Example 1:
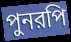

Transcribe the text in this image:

পুনরপি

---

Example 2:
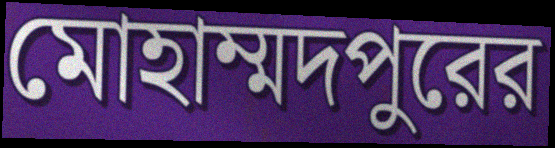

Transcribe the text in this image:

মোহাম্মদপুরের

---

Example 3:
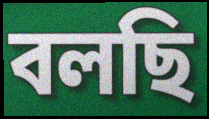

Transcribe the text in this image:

বলছি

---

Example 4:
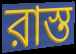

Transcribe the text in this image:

রাস্ত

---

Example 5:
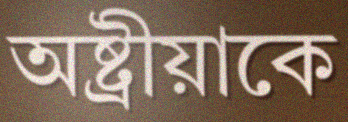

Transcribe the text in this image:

অষ্ট্রীয়াকে